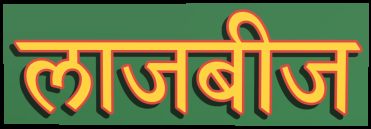
लाजबीज